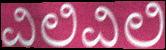
ವಿಲಿವಿಲಿ